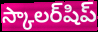
స్కాలర్‌షిప్